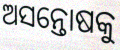
ଅସନ୍ତୋଷକୁ